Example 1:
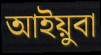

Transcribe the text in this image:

আইয়ুবা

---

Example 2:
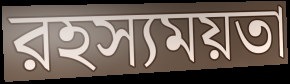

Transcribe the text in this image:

রহস্যময়তা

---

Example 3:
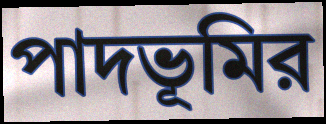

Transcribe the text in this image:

পাদভূমির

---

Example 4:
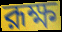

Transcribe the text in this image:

রূক্ষ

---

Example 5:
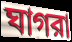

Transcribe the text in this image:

ঘাগরা